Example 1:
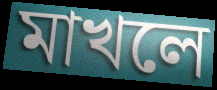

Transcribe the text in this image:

মাখলে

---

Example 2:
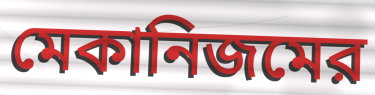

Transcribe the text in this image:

মেকানিজমের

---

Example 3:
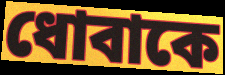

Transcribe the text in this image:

ধোবাকে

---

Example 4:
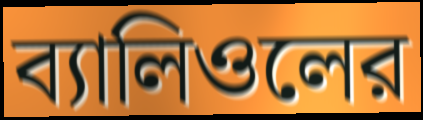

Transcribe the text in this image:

ব্যালিওলের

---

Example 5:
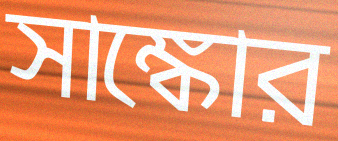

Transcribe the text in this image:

সাঙ্কোর